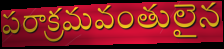
పరాక్రమవంతులైన